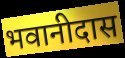
भवानीदास